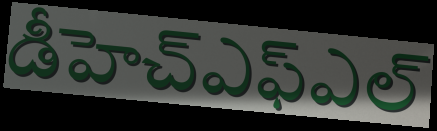
డీహెచ్ఎఫ్ఎల్